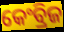
କେଂବ୍ରିଜ